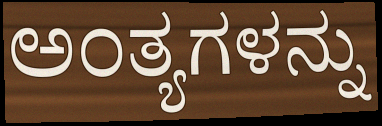
ಅಂತ್ಯಗಳನ್ನು